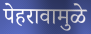
पेहरावामुळे